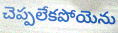
చెప్పలేకపోయెను